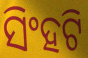
ସିଂହଟି